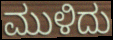
ಮುಳಿದು